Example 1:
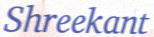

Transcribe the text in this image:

Shreekant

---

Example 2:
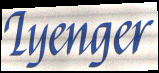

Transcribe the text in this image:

Iyenger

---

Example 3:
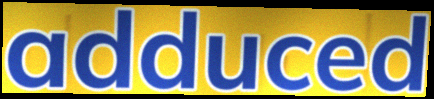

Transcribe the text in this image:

adduced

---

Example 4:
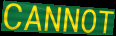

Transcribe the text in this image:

CANNOT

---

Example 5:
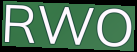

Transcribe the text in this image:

RWO